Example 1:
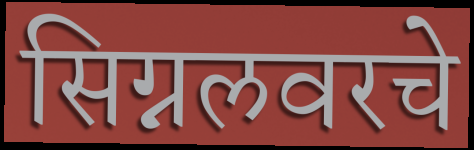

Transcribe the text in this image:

सिग्नलवरचे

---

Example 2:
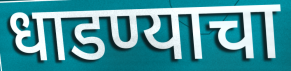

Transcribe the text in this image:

धाडण्याचा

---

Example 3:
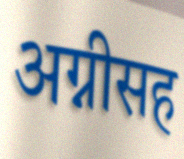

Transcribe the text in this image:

अग्नीसह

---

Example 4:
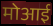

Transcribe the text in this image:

मोआई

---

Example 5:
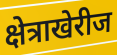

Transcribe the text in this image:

क्षेत्राखेरीज